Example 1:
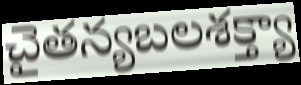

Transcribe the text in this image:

చైతన్యబలశక్త్యా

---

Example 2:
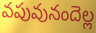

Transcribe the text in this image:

వపువునందెల్ల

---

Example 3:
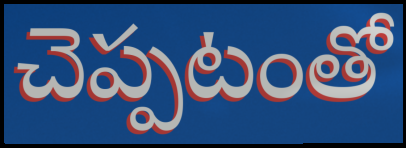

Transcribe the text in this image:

చెప్పటంతో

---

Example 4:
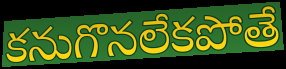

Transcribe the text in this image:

కనుగొనలేకపోతే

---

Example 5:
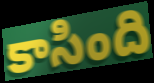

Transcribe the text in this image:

కాసింది